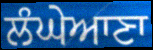
ਲੰਘੇਆਣਾ